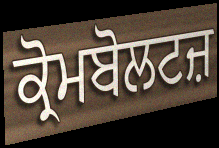
ਕ੍ਰੋਮਬੋਲਟਜ਼